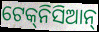
ଟେକ୍‌ନିସିଆନ୍